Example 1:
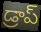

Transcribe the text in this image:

డ్రాప్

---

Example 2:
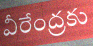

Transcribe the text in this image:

వీరేంద్రకు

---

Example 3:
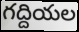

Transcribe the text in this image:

గద్దియల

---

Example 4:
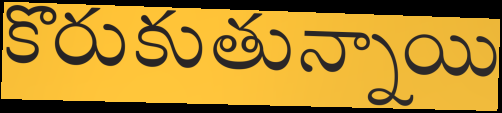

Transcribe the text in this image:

కొరుకుతున్నాయి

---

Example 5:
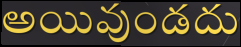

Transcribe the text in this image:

అయివుండదు